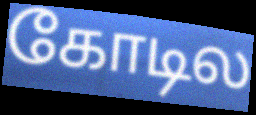
கோடில